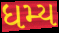
ધમ્ય